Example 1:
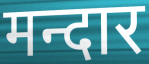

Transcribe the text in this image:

मन्दार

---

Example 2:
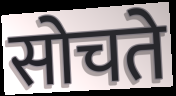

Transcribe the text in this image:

सोचते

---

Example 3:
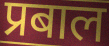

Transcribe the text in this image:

प्रबाल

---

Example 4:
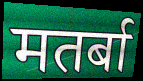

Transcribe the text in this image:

मतर्बा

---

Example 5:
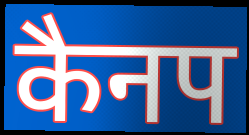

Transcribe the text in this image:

कैनप